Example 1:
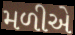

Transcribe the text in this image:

મળીએ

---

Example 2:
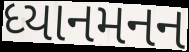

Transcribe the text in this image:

ધ્યાનમનન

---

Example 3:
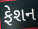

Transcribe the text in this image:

ફેશન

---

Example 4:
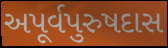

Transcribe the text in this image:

અપૂર્વપુરુષદાસ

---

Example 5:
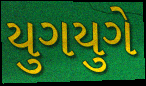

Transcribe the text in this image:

યુગયુગે